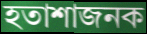
হতাশাজনক